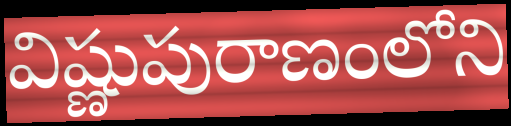
విష్ణుపురాణంలోని